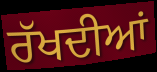
ਰੱਖਦੀਆਂ